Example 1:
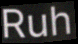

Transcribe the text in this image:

Ruh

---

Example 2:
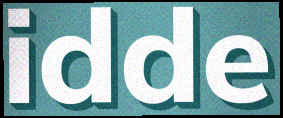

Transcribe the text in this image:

idde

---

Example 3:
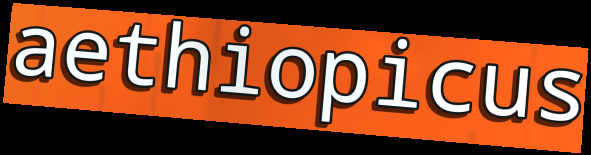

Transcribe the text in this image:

aethiopicus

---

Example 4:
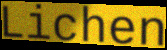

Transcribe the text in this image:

Lichen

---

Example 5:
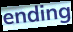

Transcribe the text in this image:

ending